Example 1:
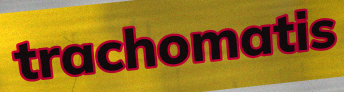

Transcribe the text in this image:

trachomatis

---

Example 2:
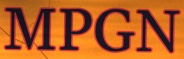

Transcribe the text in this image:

MPGN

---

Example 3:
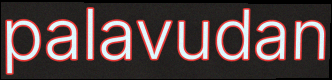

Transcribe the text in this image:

palavudan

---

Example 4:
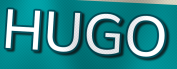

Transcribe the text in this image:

HUGO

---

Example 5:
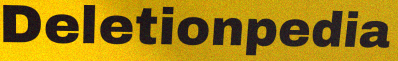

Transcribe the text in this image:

Deletionpedia